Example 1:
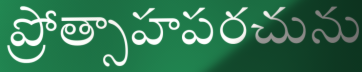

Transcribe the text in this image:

ప్రోత్సాహపరచును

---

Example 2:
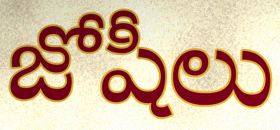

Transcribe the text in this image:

జోషీలు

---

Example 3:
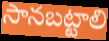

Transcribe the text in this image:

సానబట్టాలి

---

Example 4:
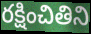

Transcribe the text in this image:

రక్షించితిని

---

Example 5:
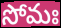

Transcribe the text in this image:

సోమః